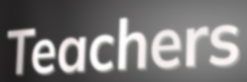
Teachers